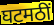
घटमठीं